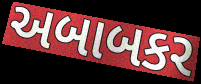
અબાબકર